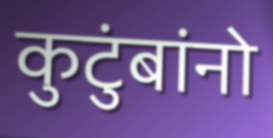
कुटुंबांनो